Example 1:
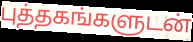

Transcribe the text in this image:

புத்தகங்களுடன்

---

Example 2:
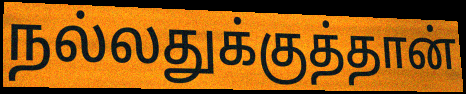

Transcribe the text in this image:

நல்லதுக்குத்தான்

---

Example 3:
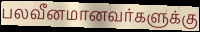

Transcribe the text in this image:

பலவீனமானவர்களுக்கு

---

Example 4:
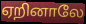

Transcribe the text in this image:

ஏறினாலே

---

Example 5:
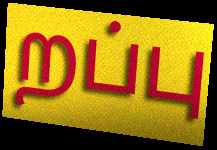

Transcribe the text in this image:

றப்பு